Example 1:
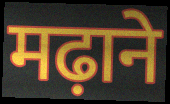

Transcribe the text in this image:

मढ़ाने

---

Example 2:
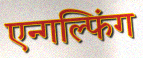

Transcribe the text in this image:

एन्गल्फिंग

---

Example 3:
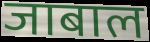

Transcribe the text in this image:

जाबाल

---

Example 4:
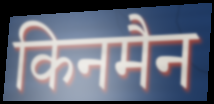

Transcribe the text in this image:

किनमैन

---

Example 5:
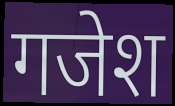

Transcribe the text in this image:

गजेश